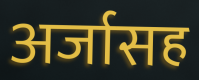
अर्जासह